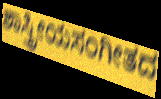
ಶಾಸ್ತ್ರೀಯಸಂಗೀತದ